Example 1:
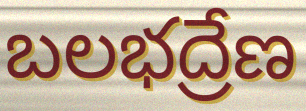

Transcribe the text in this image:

బలభద్రేణ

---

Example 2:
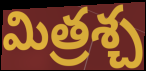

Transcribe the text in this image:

మిత్రశ్చ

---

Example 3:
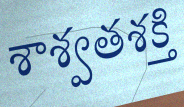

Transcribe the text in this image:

శాశ్వతశక్తి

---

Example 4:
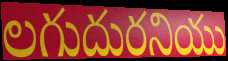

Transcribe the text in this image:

లగుదురనియు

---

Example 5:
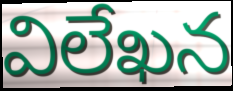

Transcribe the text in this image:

విలేఖన